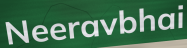
Neeravbhai